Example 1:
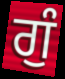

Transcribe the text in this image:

ਗੁੰ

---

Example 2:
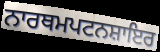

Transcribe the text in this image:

ਨਾਰਥਮਪਟਨਸ਼ਾਇਰ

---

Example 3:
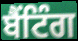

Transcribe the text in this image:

ਬੈਂਟਿੰਗ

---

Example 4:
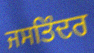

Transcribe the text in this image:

ਜਸਤਿੰਦਰ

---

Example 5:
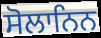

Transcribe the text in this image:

ਸੋਲਾਨਿਨ